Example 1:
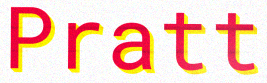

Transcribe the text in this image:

Pratt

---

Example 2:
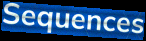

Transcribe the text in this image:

Sequences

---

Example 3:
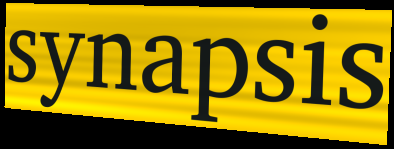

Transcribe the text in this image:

synapsis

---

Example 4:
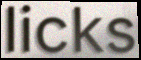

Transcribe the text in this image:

licks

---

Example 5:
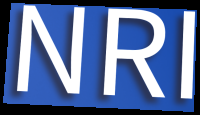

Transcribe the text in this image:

NRI